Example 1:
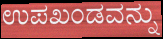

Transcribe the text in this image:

ಉಪಖಂಡವನ್ನು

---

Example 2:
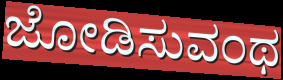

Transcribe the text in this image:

ಜೋಡಿಸುವಂಥ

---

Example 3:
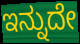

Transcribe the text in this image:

ಇನ್ನುದೇ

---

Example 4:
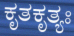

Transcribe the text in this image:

ಕೃತಕೃತ್ಯಃ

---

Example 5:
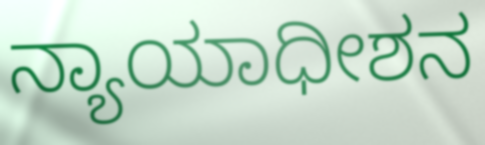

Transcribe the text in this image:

ನ್ಯಾಯಾಧೀಶನ